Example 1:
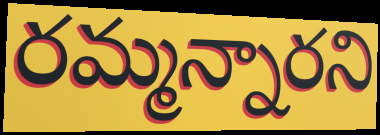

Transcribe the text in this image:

రమ్మన్నారని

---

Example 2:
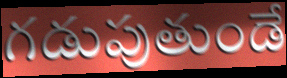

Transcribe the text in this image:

గడుపుతుండే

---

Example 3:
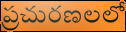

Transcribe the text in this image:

ప్రచురణలలో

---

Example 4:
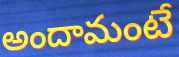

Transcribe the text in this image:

అందామంటే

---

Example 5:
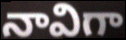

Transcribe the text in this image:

నావిగా